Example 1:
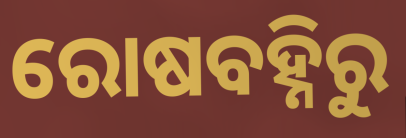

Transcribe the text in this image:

ରୋଷବହ୍ନିରୁ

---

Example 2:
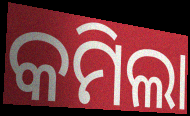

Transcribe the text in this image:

କମିଲା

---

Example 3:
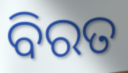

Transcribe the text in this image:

ବିରତ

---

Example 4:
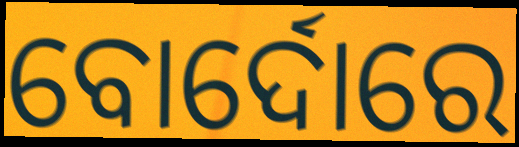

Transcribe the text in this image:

ବୋର୍ଦୋରେ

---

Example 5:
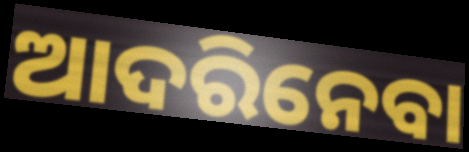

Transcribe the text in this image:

ଆଦରିନେବା